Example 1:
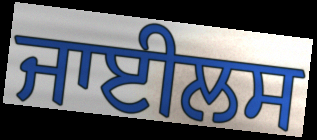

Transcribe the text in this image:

ਜਾਈਲਸ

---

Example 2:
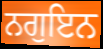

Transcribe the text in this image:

ਨਗੁਇਨ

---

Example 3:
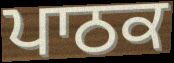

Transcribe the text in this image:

ਪਾਠਕ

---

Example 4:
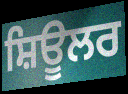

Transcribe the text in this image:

ਸ਼ਿਊਲਰ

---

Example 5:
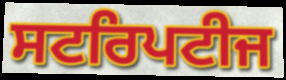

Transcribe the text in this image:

ਸਟਰਿਪਟੀਜ